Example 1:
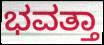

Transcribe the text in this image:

ಭವತ್ತಾ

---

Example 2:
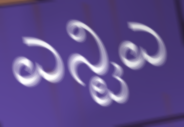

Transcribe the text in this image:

ಎನ್ಟಿಎ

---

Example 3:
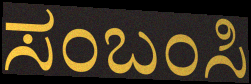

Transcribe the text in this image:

ಸಂಬಂಸಿ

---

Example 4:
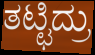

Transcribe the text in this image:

ತಟ್ಟಿದ್ರು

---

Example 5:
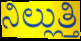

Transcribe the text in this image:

ನಿಲ್ಲುತ್ತಿ